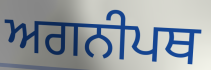
ਅਗਨੀਪਥ